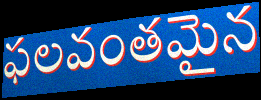
ఫలవంతమైన